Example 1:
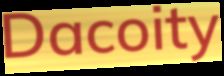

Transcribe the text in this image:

Dacoity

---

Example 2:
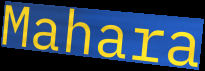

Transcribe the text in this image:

Mahara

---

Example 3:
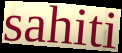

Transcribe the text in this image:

sahiti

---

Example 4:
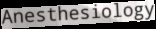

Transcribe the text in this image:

Anesthesiology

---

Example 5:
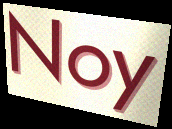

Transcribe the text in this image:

Noy